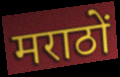
मराठों